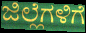
ಜಿಲ್ಲೆಗಳಿಗೆ